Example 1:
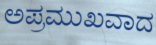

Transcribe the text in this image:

ಅಪ್ರಮುಖವಾದ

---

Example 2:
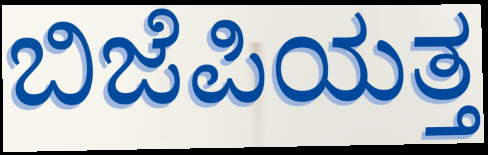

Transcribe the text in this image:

ಬಿಜೆಪಿಯತ್ತ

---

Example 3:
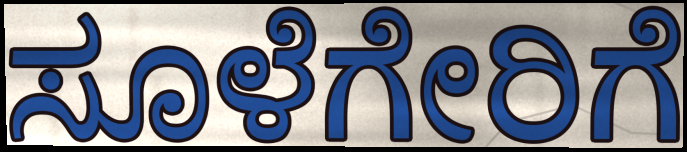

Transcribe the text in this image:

ಸೂಳೆಗೇರಿಗೆ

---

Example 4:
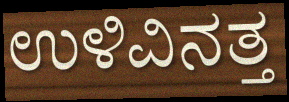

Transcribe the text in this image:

ಉಳಿವಿನತ್ತ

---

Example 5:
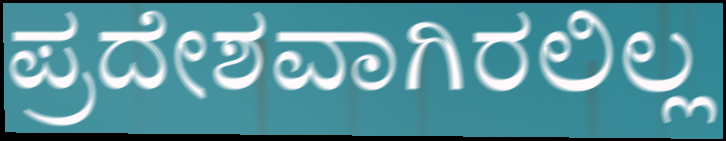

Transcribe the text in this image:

ಪ್ರದೇಶವಾಗಿರಲಿಲ್ಲ